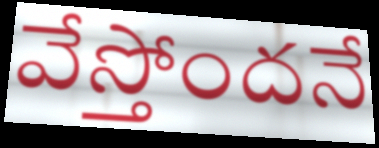
వేస్తోందనే